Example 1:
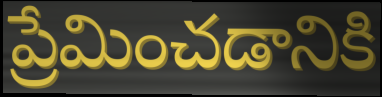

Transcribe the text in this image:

ప్రేమించడానికి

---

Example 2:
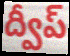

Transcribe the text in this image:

ద్వీప్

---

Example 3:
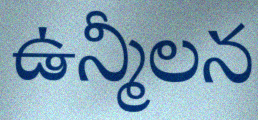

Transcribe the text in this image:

ఉన్మీలన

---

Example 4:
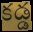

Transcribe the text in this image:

కడ్డ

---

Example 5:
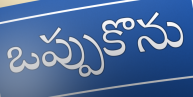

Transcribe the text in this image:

ఒప్పుకొను